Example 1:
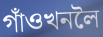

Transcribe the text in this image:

গাঁওখনলৈ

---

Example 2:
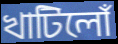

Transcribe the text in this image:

খাটিলোঁ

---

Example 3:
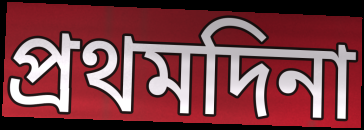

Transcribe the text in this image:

প্ৰথমদিনা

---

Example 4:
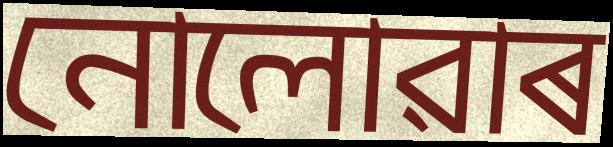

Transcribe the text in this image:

নোলোৱাৰ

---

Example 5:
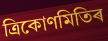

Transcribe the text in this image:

ত্ৰিকোণমিতিৰ